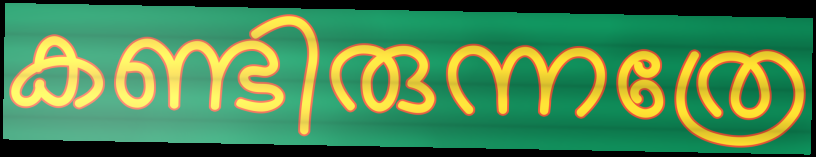
കണ്ടിരുന്നത്രേ